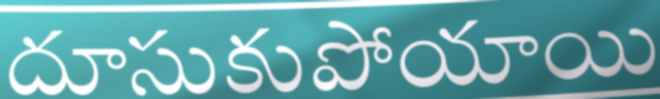
దూసుకుపోయాయి